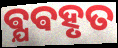
ଵ୍ଯଵହୃତ